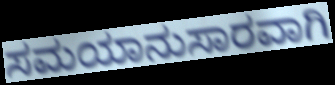
ಸಮಯಾನುಸಾರವಾಗಿ